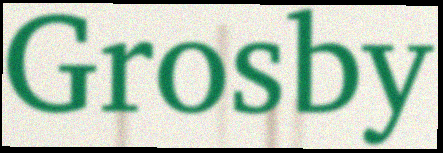
Grosby